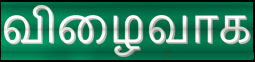
விழைவாக